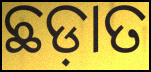
ଛଡ଼ାତ